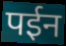
पईन